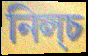
নিল্চ